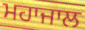
ਮਹਾਜਾਲ